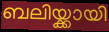
ബലിയ്ക്കായി